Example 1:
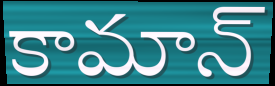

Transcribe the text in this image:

కామాన్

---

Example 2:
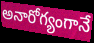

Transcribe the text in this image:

అనారోగ్యంగానే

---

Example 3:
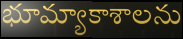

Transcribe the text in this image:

భూమ్యాకాశాలను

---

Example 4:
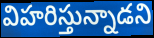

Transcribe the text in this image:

విహరిస్తున్నాడని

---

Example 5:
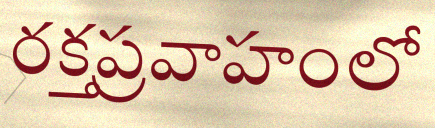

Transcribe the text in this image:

రక్తప్రవాహంలో